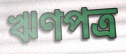
ঋণপত্র